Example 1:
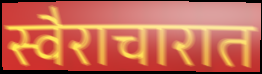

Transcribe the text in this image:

स्वैराचारात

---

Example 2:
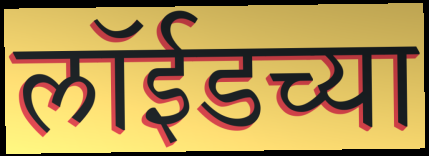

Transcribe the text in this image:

लॉईडच्या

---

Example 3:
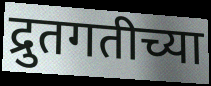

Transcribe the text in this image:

द्रुतगतीच्या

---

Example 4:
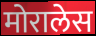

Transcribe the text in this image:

मोरालेस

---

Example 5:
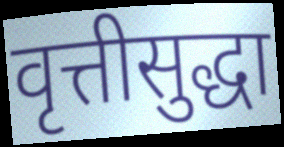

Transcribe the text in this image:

वृत्तीसुद्धा